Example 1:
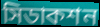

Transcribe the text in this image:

সিডাকশন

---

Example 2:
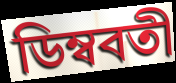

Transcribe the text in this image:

ডিম্ববতী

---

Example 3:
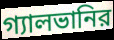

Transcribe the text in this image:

গ্যালভানির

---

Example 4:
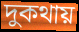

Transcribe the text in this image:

দুকথায়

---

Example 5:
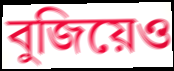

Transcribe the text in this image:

বুজিয়েও